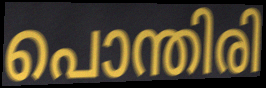
പൊന്തിരി